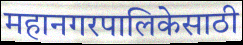
महानगरपालिकेसाठी